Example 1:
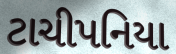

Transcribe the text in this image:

ટાચીપનિયા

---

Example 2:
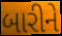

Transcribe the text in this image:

બારીને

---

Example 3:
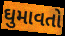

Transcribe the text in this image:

ઘુમાવતો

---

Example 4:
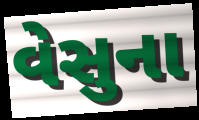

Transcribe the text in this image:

વેસુના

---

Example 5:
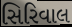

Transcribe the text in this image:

સિરિવાલ